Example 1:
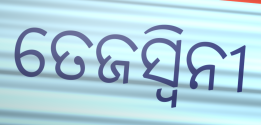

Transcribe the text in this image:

ତେଜସ୍ଵିନୀ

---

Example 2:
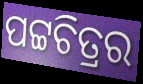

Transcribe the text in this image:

ପଟ୍ଟଚିତ୍ରର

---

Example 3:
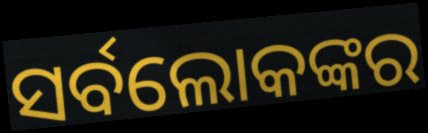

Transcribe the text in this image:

ସର୍ବଲୋକଙ୍କର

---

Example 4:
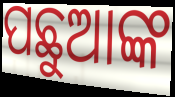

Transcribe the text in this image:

ପଛୁଆଙ୍କ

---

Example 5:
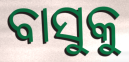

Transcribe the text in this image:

ବାସୁକୁ